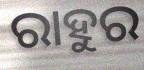
ରାହୁର